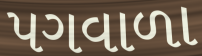
પગવાળા